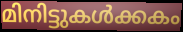
മിനിട്ടുകൾക്കകം